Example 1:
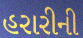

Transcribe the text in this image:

હરારીની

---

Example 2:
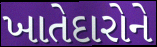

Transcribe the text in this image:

ખાતેદારોને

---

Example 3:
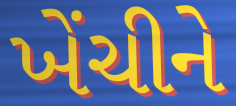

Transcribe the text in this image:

ખેંચીને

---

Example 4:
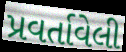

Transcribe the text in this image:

પ્રવર્તાવેલી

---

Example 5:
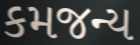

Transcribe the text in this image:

કમજન્ય